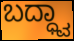
ಬದ್ಧ್ವಾ